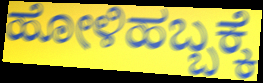
ಹೋಳಿಹಬ್ಬಕ್ಕೆ